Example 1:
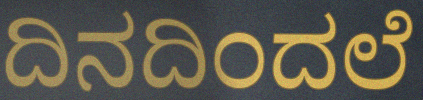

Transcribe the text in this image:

ದಿನದಿಂದಲೆ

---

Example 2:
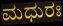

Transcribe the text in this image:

ಮಧುರಃ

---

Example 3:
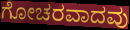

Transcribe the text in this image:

ಗೋಚರವಾದವು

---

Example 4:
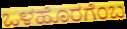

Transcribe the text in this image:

ಒಳಹೊರಗೆಂಬ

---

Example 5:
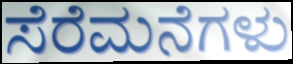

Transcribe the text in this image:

ಸೆರೆಮನೆಗಳು